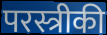
परस्त्रीकी